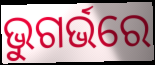
ଭୁଗର୍ଭରେ